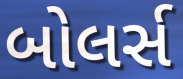
બોલર્સ